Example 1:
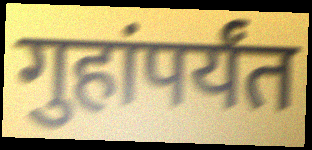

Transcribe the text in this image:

गुहांपर्यंत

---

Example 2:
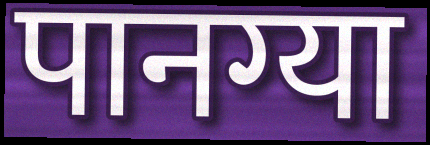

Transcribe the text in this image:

पानग्या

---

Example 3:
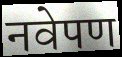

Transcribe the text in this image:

नवेपण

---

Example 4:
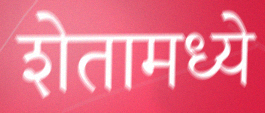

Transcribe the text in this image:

शेतामध्ये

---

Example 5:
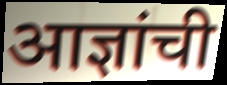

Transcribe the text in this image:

आज्ञांची